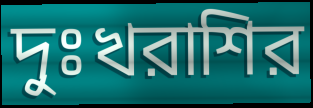
দুঃখরাশির